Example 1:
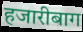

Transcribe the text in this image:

हजारीबाग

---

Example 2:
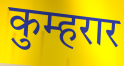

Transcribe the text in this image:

कुम्हरार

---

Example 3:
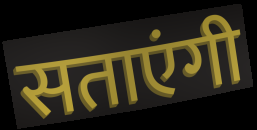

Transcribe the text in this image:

सताएंगी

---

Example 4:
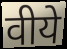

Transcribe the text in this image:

वीये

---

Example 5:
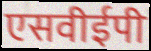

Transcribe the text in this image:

एसवीईपी